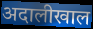
अदालीखाल